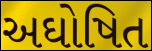
અઘોષિત